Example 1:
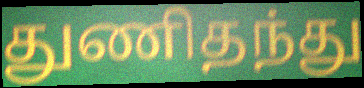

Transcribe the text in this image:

துணிதந்து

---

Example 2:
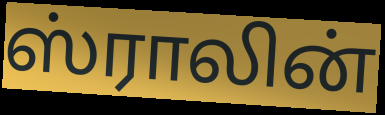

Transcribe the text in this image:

ஸ்ராலின்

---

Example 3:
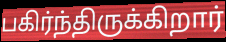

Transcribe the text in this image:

பகிர்ந்திருக்கிறார்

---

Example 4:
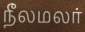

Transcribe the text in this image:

நீலமலர்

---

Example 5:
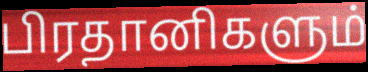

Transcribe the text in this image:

பிரதானிகளும்